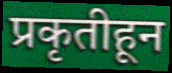
प्रकृतीहून